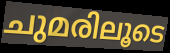
ചുമരിലൂടെ